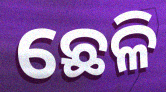
ଛେଳି